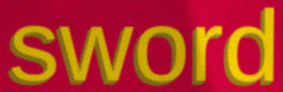
sword